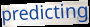
predicting